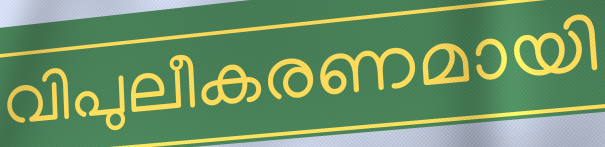
വിപുലീകരണമായി